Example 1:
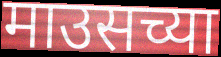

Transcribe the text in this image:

माउसच्या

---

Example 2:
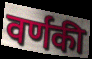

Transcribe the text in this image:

वर्णकी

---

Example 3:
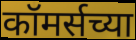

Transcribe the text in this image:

कॉमर्सच्या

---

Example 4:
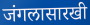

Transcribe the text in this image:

जंगलासारखी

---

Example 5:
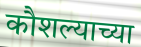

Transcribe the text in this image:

कौशल्याच्या